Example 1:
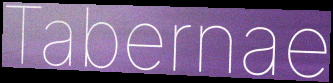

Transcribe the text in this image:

Tabernae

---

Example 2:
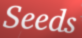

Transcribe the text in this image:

Seeds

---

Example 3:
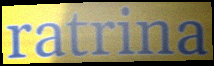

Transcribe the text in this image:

ratrina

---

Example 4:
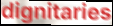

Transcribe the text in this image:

dignitaries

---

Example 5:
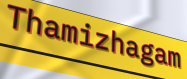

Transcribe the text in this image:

Thamizhagam